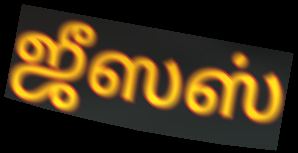
ஜீஸஸ்